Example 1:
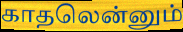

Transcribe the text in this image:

காதலென்னும்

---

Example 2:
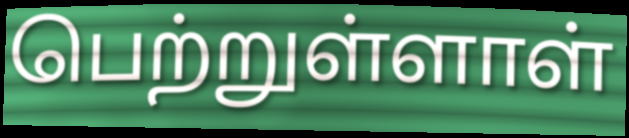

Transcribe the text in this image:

பெற்றுள்ளாள்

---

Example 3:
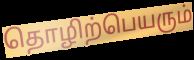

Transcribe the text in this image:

தொழிற்பெயரும்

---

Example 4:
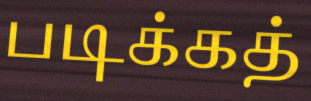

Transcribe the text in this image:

படிக்கத்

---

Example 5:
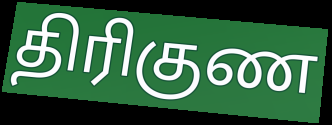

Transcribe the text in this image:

திரிகுண